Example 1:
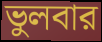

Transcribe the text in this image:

ভুলবার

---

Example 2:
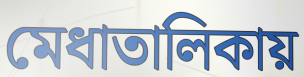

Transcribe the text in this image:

মেধাতালিকায়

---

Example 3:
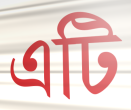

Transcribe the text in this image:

এটি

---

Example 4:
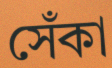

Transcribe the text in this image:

সেঁকা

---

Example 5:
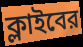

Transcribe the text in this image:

ক্লাইবের